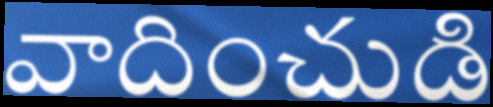
వాదించుడి